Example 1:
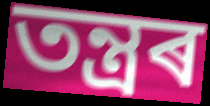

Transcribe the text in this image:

তন্ত্ৰৰ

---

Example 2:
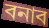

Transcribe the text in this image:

বনাব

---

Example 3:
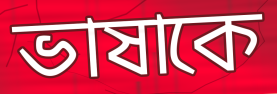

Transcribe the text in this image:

ভাষাকে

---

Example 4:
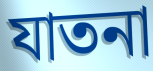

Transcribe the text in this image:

যাতনা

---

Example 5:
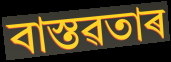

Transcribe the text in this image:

বাস্তৱতাৰ